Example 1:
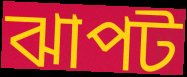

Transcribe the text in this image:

ঝাপট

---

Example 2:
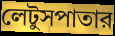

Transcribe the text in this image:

লেটুসপাতার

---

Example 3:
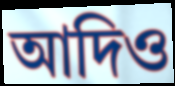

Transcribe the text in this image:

আদিও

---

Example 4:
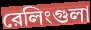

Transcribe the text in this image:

রেলিংগুলা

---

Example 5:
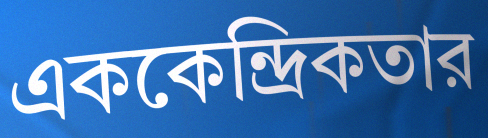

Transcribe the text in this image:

এককেন্দ্রিকতার